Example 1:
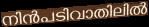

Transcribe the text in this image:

നിൻപടിവാതിലിൽ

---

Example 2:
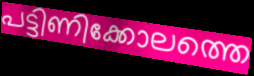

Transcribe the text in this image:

പട്ടിണിക്കോലത്തെ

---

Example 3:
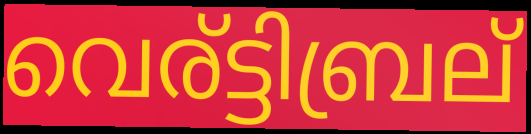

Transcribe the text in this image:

വെര്ട്ടിബ്രല്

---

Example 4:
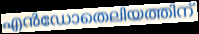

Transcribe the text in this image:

എൻഡോതെലിയത്തിന്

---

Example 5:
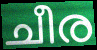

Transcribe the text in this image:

ചീര